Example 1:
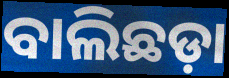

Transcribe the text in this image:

ବାଲିଛଡ଼ା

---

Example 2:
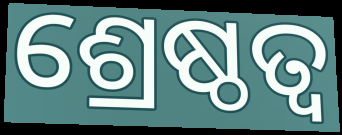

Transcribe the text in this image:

ଶ୍ରେଷ୍ଠତ୍ବ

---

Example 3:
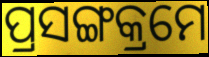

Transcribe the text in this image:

ପ୍ରସଙ୍ଗକ୍ରମେ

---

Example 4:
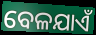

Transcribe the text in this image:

ବେଳଯାଏଁ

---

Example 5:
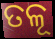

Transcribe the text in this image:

ତଳୂ